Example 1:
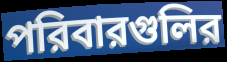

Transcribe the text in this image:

পরিবারগুলির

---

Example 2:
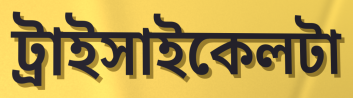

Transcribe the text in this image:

ট্রাইসাইকেলটা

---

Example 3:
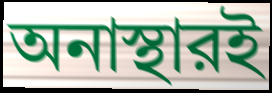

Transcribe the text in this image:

অনাস্থারই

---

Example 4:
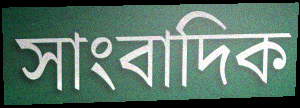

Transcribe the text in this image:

সাংবাদিক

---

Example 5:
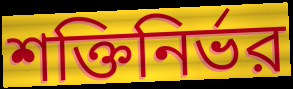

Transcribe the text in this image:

শক্তিনির্ভর